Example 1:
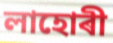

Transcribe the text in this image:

লাহোৰী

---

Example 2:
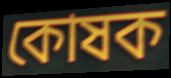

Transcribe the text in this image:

কোষক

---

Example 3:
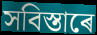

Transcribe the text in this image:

সবিস্তাৰে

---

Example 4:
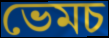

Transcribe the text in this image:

ভেমচ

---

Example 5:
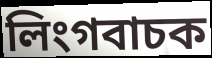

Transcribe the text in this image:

লিংগবাচক